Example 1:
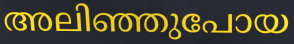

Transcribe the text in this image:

അലിഞ്ഞുപോയ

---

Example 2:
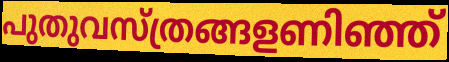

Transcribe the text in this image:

പുതുവസ്ത്രങ്ങളണിഞ്ഞ്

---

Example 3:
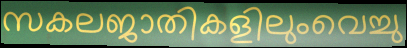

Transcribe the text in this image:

സകലജാതികളിലുംവെച്ചു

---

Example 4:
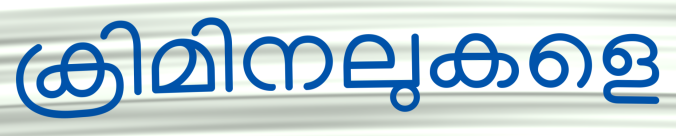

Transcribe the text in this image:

ക്രിമിനലുകളെ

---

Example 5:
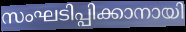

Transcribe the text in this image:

സംഘടിപ്പിക്കാനായി